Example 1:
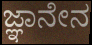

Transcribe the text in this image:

ಜ್ಞಾನೇನ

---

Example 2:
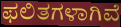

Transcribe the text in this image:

ಫಲಿತಗಳಾಗಿವೆ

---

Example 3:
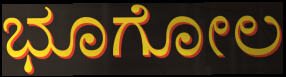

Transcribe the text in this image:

ಭೂಗೋಲ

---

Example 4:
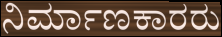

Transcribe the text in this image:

ನಿರ್ಮಾಣಕಾರರು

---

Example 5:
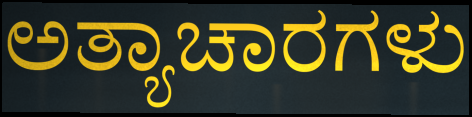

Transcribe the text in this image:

ಅತ್ಯಾಚಾರಗಳು